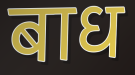
बाध